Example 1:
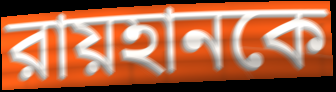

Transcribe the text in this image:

রায়হানকে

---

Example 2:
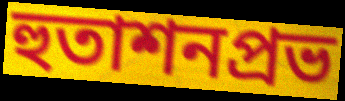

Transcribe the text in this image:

হুতাশনপ্রভ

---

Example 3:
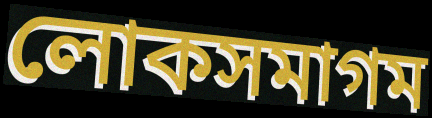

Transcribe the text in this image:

লোকসমাগম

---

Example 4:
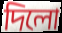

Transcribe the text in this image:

দিলো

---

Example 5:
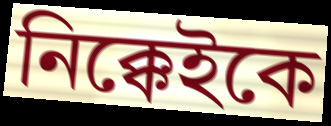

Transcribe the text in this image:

নিক্কেইকে